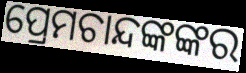
ପ୍ରେମଚାନ୍ଦଙ୍କଙ୍କର